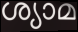
ശ്യാമ